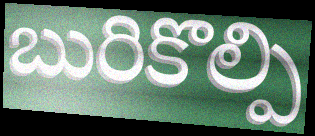
బురికొల్పి